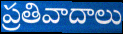
ప్రతివాదాలు